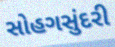
સોહગસુંદરી